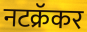
नटक्रॅकर